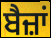
ਬੈਜ਼ਾਂ